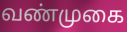
வண்முகை